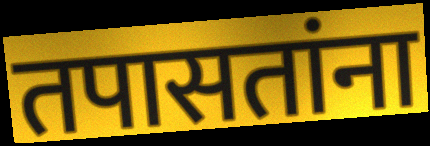
तपासतांना